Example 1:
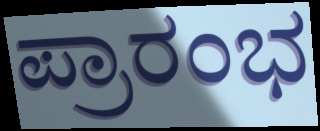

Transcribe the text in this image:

ಪ್ರಾರಂಭ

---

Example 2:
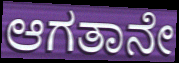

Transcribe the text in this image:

ಆಗತಾನೇ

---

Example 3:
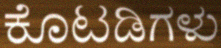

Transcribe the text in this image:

ಕೊಟಡಿಗಳು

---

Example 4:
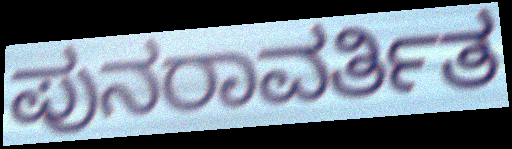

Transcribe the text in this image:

ಪುನರಾವರ್ತಿತ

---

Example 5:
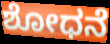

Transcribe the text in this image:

ಶೋಧನೆ